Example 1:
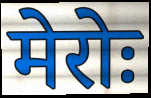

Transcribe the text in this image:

मेरोः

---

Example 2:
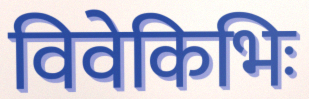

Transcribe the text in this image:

विवेकिभिः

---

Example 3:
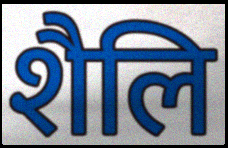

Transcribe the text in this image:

शैलि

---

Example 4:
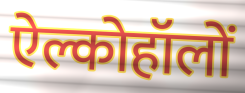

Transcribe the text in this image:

ऐल्कोहॉलों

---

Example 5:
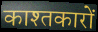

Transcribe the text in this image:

काश्तकारों